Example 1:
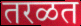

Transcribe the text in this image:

तरळत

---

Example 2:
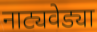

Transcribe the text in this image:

नाट्यवेड्या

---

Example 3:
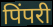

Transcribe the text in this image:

पिंपरी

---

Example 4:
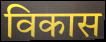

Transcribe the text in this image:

विकास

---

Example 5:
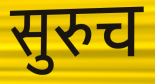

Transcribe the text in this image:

सुरुच